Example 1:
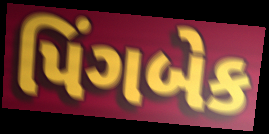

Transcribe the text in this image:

પિંગબેક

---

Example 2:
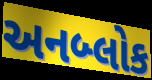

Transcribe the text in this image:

અનબ્લોક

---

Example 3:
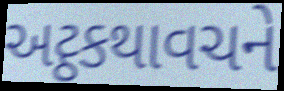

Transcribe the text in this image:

અટ્ઠકથાવચને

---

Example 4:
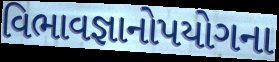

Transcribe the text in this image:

વિભાવજ્ઞાનોપયોગના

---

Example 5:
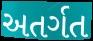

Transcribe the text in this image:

અતર્ગત